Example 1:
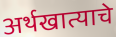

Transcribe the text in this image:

अर्थखात्याचे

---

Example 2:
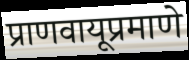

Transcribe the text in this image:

प्राणवायूप्रमाणे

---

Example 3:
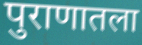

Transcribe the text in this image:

पुराणातला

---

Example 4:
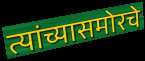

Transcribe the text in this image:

त्यांच्यासमोरचे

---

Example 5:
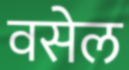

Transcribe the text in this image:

वसेल